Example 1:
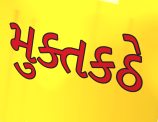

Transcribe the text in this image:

મુક્તકઠે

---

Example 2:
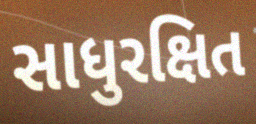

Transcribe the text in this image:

સાધુરક્ષિત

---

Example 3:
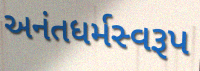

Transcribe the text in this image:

અનંતધર્મસ્વરૂપ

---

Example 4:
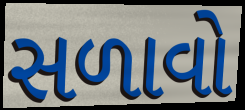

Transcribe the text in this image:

સળાવો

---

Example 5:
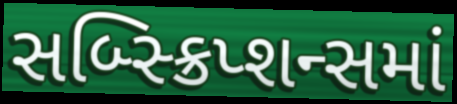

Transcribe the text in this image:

સબ્સ્ક્રિપ્શન્સમાં